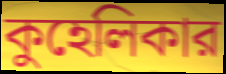
কুহেলিকার